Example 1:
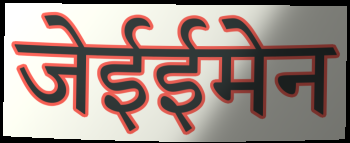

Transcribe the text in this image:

जेईईमेन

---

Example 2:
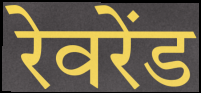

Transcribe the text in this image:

रेवरेंड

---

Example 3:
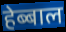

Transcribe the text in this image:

हेब्बाल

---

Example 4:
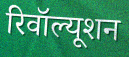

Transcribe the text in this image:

रिवॉल्यूशन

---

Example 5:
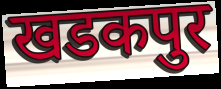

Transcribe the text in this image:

खडकपुर